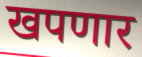
खपणार